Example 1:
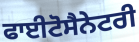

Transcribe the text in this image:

ਫਾਈਟੋਸੈਨੇਟਰੀ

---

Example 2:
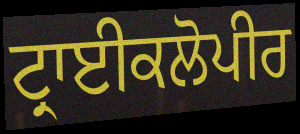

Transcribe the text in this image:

ਟ੍ਰਾਈਕਲੋਪੀਰ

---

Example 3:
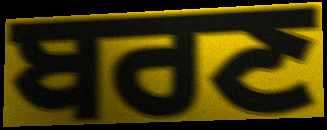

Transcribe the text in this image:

ਬਰਣ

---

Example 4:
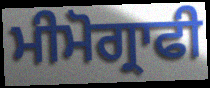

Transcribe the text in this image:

ਮੀਮੋਗ੍ਰਾਫੀ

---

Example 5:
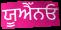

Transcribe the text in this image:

ਯੂਐੱਨਓ